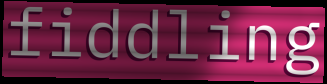
fiddling